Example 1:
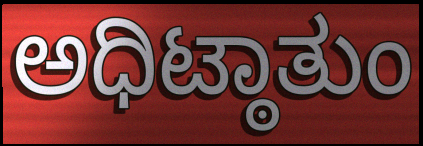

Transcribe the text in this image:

ಅಧಿಟ್ಠಾತುಂ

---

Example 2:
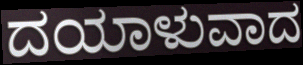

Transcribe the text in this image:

ದಯಾಳುವಾದ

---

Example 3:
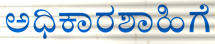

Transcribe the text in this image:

ಅಧಿಕಾರಶಾಹಿಗೆ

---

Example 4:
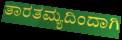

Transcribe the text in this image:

ತಾರತಮ್ಯದಿಂದಾಗಿ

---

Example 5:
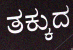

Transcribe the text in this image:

ತಕ್ಕುದ